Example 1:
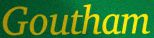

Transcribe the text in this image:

Goutham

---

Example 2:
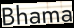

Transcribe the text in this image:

Bhama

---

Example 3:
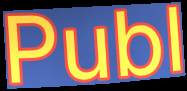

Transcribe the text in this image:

Publ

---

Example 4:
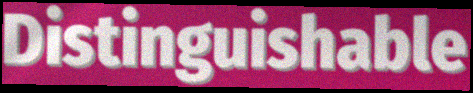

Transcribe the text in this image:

Distinguishable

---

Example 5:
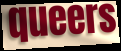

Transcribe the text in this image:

queers